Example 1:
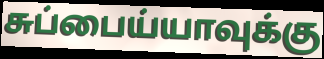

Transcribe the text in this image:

சுப்பைய்யாவுக்கு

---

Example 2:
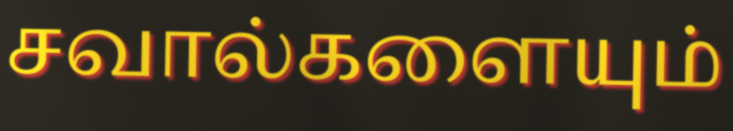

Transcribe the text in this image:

சவால்களையும்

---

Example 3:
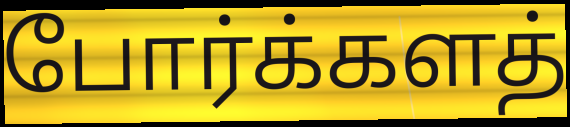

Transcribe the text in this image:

போர்க்களத்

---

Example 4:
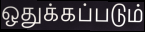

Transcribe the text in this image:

ஒதுக்கப்படும்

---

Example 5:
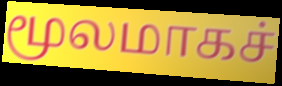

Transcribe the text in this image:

மூலமாகச்